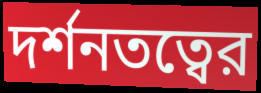
দর্শনতত্বের